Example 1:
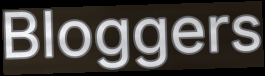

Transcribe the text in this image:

Bloggers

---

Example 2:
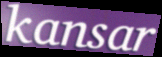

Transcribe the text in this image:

kansar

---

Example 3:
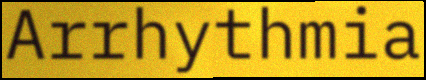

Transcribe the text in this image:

Arrhythmia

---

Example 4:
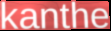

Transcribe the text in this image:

kanthe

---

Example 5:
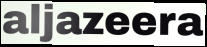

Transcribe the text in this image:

aljazeera